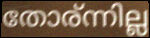
തോര്ന്നില്ല